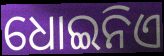
ଧୋଇନିଏ